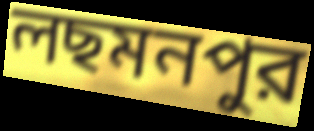
লছমনপুর